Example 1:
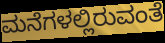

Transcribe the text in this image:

ಮನೆಗಳಲ್ಲಿರುವಂತೆ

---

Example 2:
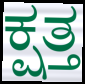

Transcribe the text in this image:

ಕ್ಷತ್ತ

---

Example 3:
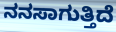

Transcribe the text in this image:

ನನಸಾಗುತ್ತಿದೆ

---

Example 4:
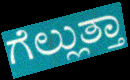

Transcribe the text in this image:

ಗೆಲ್ಲುತ್ತಾ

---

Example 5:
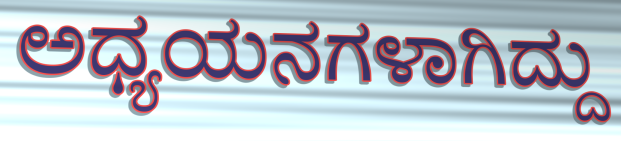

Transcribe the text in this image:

ಅಧ್ಯಯನಗಳಾಗಿದ್ದು